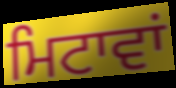
ਮਿਟਾਵਾਂ